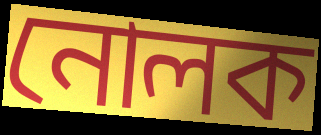
নোলক